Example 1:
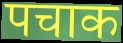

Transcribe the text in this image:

पचाक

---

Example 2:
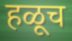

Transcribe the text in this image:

हळूच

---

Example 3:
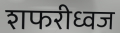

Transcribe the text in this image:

शफरीध्वज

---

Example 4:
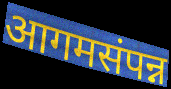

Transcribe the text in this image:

आगमसंपन्न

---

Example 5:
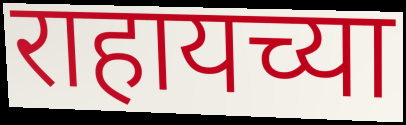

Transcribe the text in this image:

राहायच्या